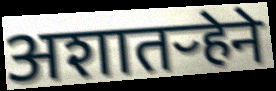
अशातऱ्हेने